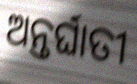
ଅନ୍ତର୍ଘାତୀ